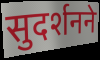
सुदर्शनने